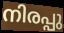
നിരപ്പു